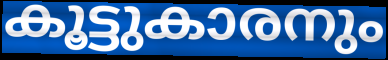
കൂട്ടുകാരനും